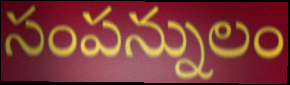
సంపన్నులం